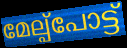
മേല്പ്പോട്ട്